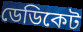
ডেডিকেট